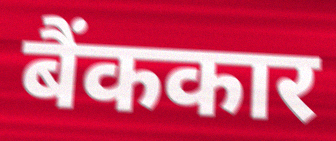
बैंककार